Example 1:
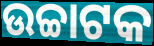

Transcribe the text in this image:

ଉଚ୍ଚାଟକ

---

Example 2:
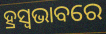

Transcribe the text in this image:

ହ୍ରସ୍ୱଭାବରେ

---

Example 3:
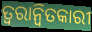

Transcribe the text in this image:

ତ୍ୱରାନ୍ୱିତକାରୀ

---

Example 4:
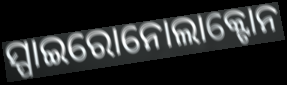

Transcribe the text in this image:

ସ୍ପାଇରୋନୋଲାକ୍ଟୋନ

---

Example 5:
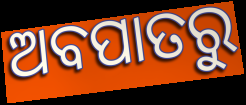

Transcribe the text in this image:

ଅବପାତରୁ